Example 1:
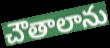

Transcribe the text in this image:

చౌతాలాను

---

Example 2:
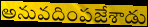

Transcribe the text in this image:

అనువదింపజేశాడు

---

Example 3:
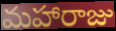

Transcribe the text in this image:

మహారాజు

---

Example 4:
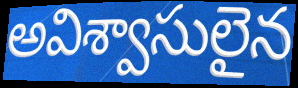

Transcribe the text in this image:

అవిశ్వాసులైన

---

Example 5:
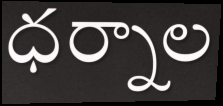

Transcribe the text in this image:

ధర్నాల